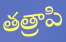
తత్రాపి